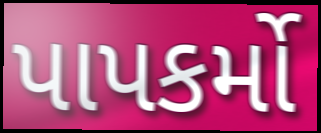
પાપકર્મો